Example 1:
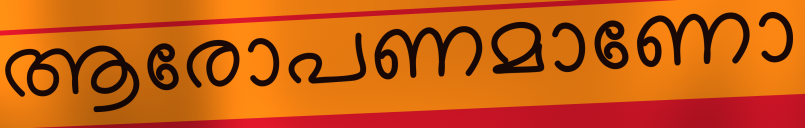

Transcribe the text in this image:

ആരോപണമാണോ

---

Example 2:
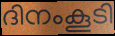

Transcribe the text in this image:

ദിനംകൂടി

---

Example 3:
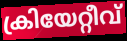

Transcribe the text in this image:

ക്രിയേറ്റീവ്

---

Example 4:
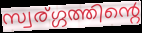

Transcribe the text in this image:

സ്വര്ഗ്ഗത്തിന്റെ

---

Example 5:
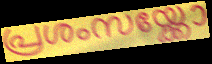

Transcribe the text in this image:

പ്രശംസയ്ക്കോ